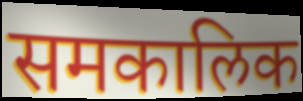
समकालिक